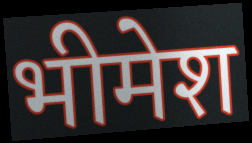
भीमेश